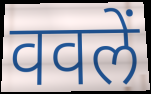
ववलें